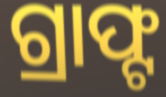
ଗ୍ରାଫ୍ଟ